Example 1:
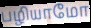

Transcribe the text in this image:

பழியாமோ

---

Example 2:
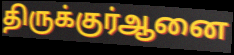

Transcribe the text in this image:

திருக்குர்ஆனை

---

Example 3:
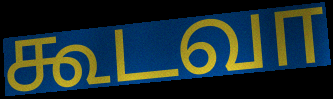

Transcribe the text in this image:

கூடவா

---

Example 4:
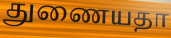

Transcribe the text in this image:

துணையதா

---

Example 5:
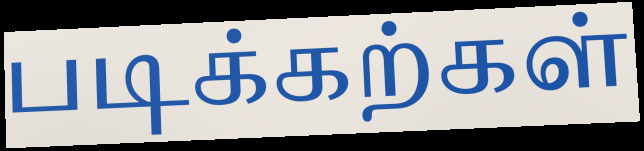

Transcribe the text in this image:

படிக்கற்கள்